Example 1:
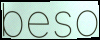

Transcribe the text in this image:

beso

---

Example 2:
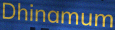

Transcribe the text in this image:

Dhinamum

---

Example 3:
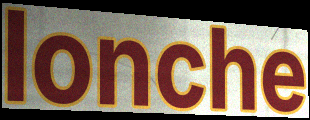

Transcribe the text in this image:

lonche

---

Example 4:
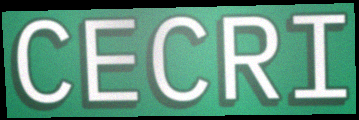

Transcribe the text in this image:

CECRI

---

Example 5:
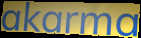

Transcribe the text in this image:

akarma